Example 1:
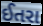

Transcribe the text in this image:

ઈતરા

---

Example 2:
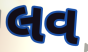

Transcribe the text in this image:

લવ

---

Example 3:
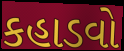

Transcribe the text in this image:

કહાડવો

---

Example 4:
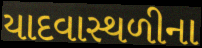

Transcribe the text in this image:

યાદવાસ્થળીના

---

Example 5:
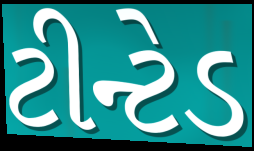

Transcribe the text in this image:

ટીન્ટેડ